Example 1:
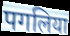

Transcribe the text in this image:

पगलिया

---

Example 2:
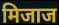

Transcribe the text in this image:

मिजाज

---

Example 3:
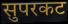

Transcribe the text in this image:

सुपरकट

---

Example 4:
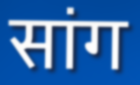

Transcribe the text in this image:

सांग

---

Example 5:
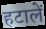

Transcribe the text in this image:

हटालें